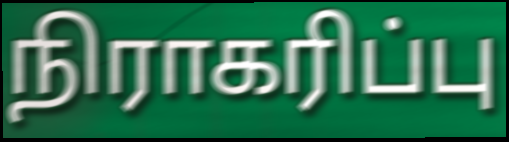
நிராகரிப்பு